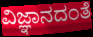
ವಿಜ್ಞಾನದಂತೆ